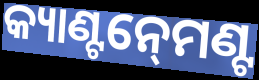
କ୍ୟାଣ୍ଟନ୍‍ମେଣ୍ଟ